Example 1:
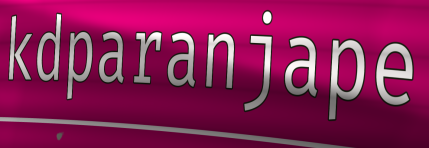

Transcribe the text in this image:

kdparanjape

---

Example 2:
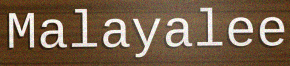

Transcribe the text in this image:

Malayalee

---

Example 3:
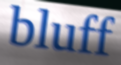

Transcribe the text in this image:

bluff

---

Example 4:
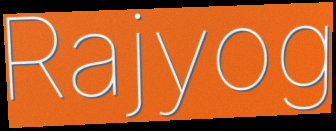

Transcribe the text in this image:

Rajyog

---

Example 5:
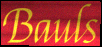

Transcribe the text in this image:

Bauls